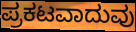
ಪ್ರಕಟವಾದುವು